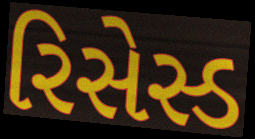
રિસેસ્ડ